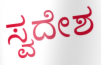
ಸ್ವದೇಶ